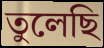
তুলেছি